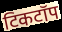
टिकटॉप